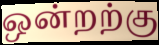
ஒன்றற்கு